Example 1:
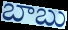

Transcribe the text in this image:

బాబు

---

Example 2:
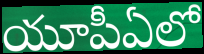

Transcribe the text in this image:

యూపీఏలో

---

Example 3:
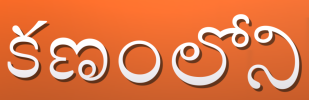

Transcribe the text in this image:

కణంలోని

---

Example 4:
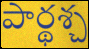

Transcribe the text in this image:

పార్థశ్చ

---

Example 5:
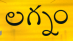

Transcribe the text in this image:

లగ్నం